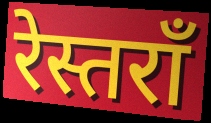
रेस्तराँ